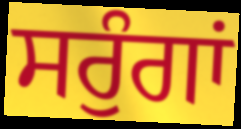
ਸਰੁੰਗਾਂ